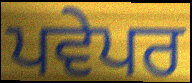
ਪਵੇਪਰ